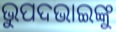
ଭୁପଦଭାଇଙ୍କୁ